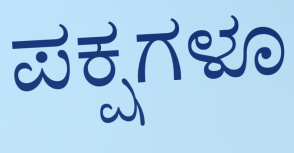
ಪಕ್ಷಗಳೂ